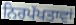
ਨਿਰਪੱਖਤਾਵਾਂ